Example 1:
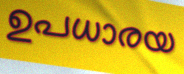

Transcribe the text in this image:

ഉപധാരയ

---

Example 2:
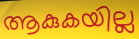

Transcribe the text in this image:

ആകുകയില്ല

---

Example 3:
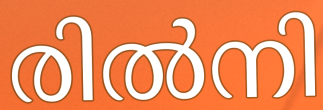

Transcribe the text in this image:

രിൽനി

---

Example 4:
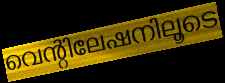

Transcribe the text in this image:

വെന്റിലേഷനിലൂടെ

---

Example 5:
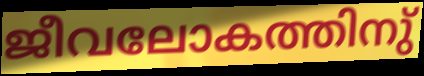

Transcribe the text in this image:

ജീവലോകത്തിനു്